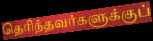
தெரிந்தவர்களுக்குப்